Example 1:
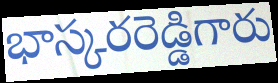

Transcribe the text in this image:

భాస్కరరెడ్డిగారు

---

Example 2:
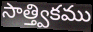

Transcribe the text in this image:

సాత్త్వికము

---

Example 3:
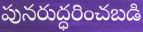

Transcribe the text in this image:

పునరుద్ధరించబడి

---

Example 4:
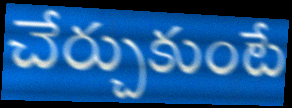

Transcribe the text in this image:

చేర్చుకుంటే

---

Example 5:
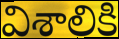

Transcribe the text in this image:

విశాలికి